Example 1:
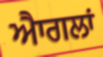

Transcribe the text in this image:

ਐਾਗਲਾਂ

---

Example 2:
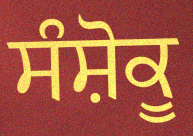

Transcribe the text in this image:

ਸੰਸ਼ੋਕੂ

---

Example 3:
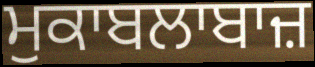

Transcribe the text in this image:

ਮੁਕਾਬਲਾਬਾਜ਼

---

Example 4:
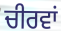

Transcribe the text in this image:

ਚੀਰਵਾਂ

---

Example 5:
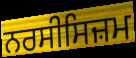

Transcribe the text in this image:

ਨਰਸੀਸਿਜ਼ਮ